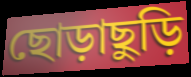
ছোড়াছুড়ি